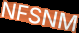
NFSNM